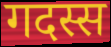
गदस्स